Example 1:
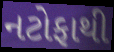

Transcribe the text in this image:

નટોફાથી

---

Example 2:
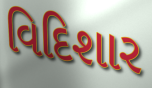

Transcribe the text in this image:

વિદિશાર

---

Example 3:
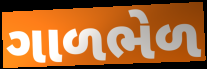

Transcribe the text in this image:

ગાળભેળ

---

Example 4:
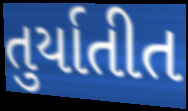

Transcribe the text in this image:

તુર્યાતીત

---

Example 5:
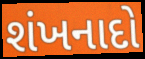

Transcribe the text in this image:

શંખનાદો